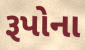
રૂપોના